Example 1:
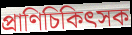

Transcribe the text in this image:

প্রাণিচিকিৎসক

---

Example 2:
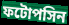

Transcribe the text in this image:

ফটোপসিন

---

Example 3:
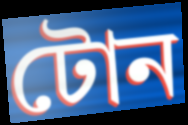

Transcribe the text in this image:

টোন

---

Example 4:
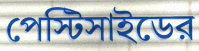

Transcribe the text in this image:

পেস্টিসাইডের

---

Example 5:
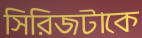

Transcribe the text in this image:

সিরিজটাকে